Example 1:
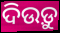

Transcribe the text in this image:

ଦିଉଡ଼ୁ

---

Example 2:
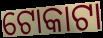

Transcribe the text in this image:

ଟୋକାଟା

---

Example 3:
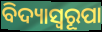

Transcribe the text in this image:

ବିଦ୍ୟାସ୍ୱରୂପା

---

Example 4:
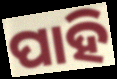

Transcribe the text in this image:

ପାହି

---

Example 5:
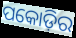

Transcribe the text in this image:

ପକୋଡ଼ିର